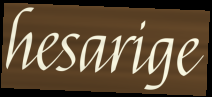
hesarige